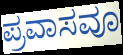
ಪ್ರವಾಸವೂ